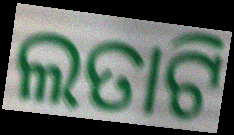
ଲତାଟି